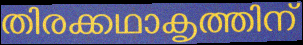
തിരക്കഥാകൃത്തിന്